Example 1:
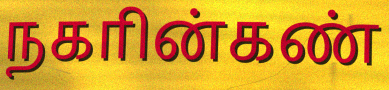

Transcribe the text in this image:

நகரின்கண்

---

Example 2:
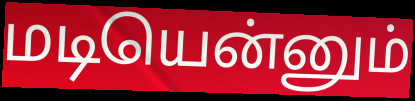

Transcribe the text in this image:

மடியென்னும்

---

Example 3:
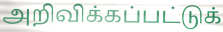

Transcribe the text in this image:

அறிவிக்கப்பட்டுக்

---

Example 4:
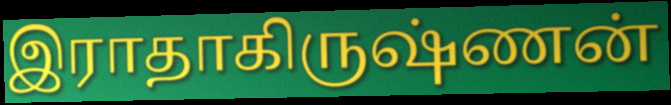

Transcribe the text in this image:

இராதாகிருஷ்ணன்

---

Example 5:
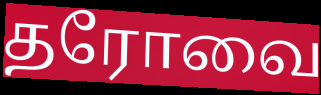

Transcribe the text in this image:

தரோவை